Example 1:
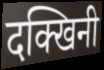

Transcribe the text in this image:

दक्खिनी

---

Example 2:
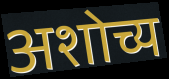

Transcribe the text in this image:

अशोच्य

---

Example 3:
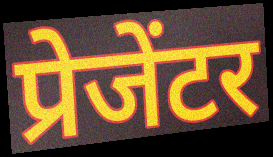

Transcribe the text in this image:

प्रेजेंटर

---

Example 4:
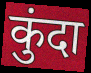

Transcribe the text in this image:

कुंदा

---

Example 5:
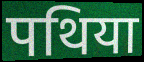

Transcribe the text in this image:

पथिया